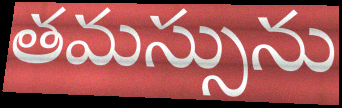
తమస్సును